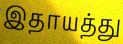
இதாயத்து